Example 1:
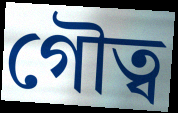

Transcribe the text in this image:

গৌত্ব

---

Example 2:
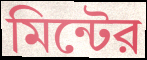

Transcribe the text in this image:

মিন্টের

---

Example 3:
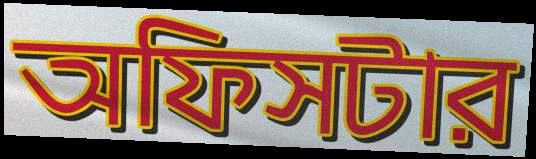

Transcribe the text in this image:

অফিসটার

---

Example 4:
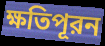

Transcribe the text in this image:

ক্ষতিপূরন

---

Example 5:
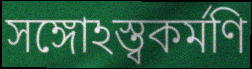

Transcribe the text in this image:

সঙ্গোঽস্ত্বকর্মণি